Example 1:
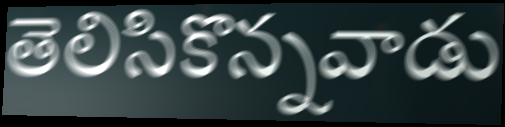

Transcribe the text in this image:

తెలిసికొన్నవాడు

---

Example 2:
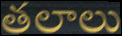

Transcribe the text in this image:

తలాలు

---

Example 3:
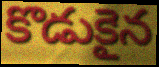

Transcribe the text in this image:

కొడుకైన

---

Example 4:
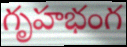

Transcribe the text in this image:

గృహభంగ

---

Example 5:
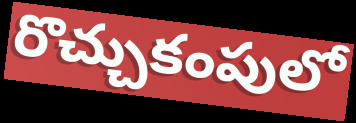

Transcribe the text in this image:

రొచ్చుకంపులో